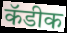
कॅडीक